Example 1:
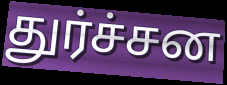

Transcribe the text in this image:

துர்ச்சன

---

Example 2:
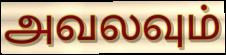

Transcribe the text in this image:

அவலவும்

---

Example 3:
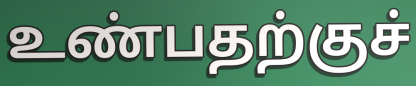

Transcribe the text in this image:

உண்பதற்குச்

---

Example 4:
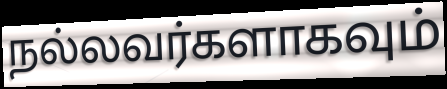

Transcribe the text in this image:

நல்லவர்களாகவும்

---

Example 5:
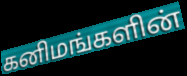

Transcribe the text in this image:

கனிமங்களின்